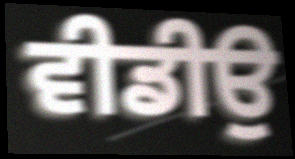
ਵੀਡੀਉ